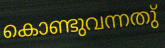
കൊണ്ടുവന്നതു്